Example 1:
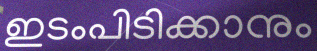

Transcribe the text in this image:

ഇടംപിടിക്കാനും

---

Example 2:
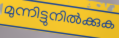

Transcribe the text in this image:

മുന്നിട്ടുനിൽക്കുക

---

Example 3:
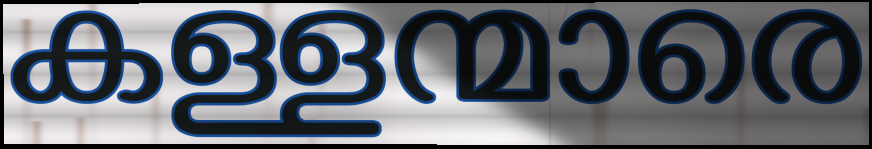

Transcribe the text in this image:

കള്ളന്മാരെ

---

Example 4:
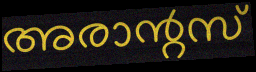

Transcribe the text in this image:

അരാന്റസ്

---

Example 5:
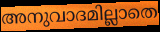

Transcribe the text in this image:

അനുവാദമില്ലാതെ